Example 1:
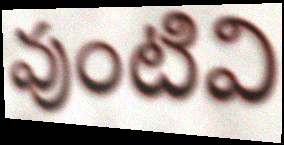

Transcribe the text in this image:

వుంటివి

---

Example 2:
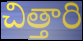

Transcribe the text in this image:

చిత్తారి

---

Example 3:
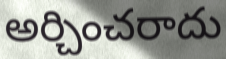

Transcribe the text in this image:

అర్చించరాదు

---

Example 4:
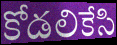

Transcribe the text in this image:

కోడలికేసి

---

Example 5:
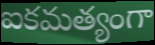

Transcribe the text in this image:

ఐకమత్యంగా